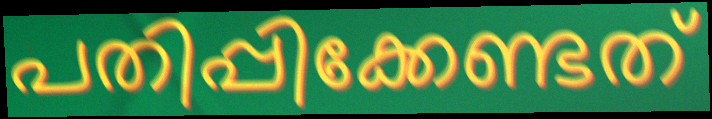
പതിപ്പിക്കേണ്ടത്